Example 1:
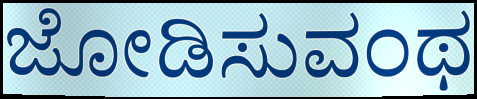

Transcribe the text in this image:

ಜೋಡಿಸುವಂಥ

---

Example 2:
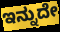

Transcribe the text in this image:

ಇನ್ನುದೇ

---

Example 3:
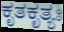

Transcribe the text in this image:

ಕೃತಕೃತ್ಯಃ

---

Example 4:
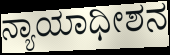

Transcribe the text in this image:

ನ್ಯಾಯಾಧೀಶನ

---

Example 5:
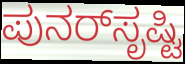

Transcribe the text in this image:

ಪುನರ್‌ಸೃಷ್ಟಿ